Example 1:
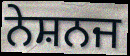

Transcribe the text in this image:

ਨੇਸ਼ਨਜ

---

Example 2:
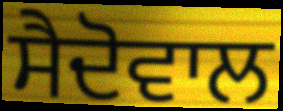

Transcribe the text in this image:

ਸੈਦੋਵਾਲ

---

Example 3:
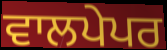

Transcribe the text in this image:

ਵਾਲਪੇਪਰ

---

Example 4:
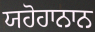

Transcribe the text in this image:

ਯਹੋਹਾਨਾਨ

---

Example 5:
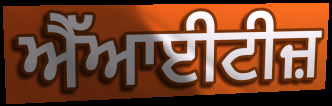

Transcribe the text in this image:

ਐੱਆਈਟੀਜ਼